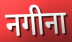
नगीना